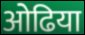
ओढिया